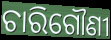
ଚାରିଗୌଣୀ